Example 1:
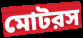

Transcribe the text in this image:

মোটরস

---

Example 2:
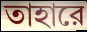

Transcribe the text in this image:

তাহারে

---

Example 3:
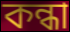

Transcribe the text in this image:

কন্ধা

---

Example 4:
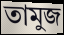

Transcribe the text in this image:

তামুজ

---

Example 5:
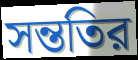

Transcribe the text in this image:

সন্ততির